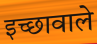
इच्छावाले